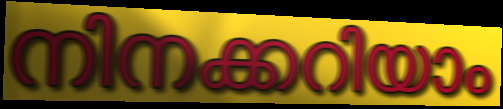
നിനക്കറിയാം